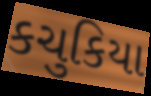
કચુકિયા